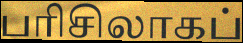
பரிசிலாகப்